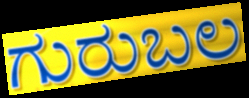
ಗುರುಬಲ